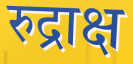
रुद्राक्ष